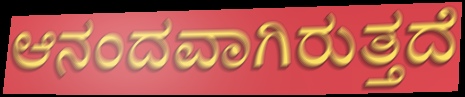
ಆನಂದವಾಗಿರುತ್ತದೆ